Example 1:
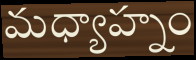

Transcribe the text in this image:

మధ్యాహ్నం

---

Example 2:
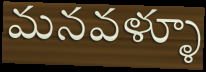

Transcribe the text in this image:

మనవళ్ళూ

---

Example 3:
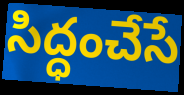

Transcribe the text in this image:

సిద్ధంచేసే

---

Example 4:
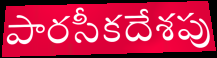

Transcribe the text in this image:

పారసీకదేశపు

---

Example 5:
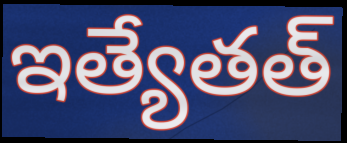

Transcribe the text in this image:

ఇత్యేతత్